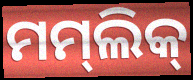
ମମ୍‌ଲିକ୍